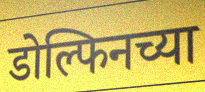
डोल्फिनच्या